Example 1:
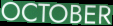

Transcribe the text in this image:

OCTOBER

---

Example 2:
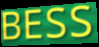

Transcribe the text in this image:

BESS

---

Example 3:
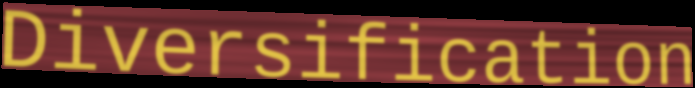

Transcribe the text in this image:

Diversification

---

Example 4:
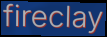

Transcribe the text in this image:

fireclay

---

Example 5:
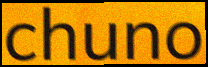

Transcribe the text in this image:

chuno